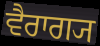
ਵੈਰਾਗ੍ਯ